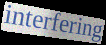
interfering